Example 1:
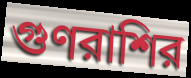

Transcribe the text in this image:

গুণরাশির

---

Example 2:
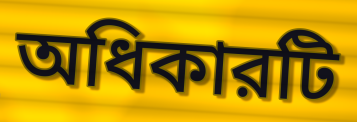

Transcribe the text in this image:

অধিকারটি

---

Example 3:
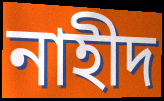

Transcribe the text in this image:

নাহীদ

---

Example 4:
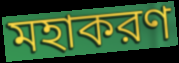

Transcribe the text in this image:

মহাকরণ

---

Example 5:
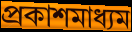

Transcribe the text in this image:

প্রকাশমাধ্যম